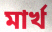
মার্খ